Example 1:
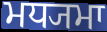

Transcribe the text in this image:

ਮਧ੍ਯਮਾ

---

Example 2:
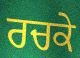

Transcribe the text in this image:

ਰਚਕੇ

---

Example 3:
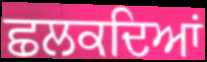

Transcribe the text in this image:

ਛਲਕਦਿਆਂ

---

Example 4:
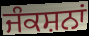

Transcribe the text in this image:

ਜੰਕਸ਼ਨਾਂ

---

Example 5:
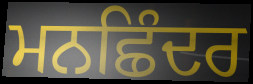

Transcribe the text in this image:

ਮਨਛਿੰਦਰ